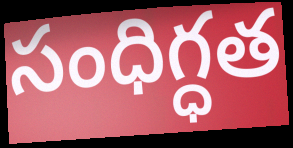
సంధిగ్ధత